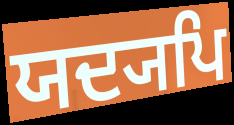
ਯਦ੍ਯਪਿ